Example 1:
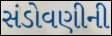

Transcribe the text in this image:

સંડોવણીની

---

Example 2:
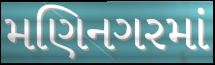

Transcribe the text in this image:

મણિનગરમાં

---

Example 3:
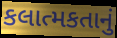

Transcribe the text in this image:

કલાત્મકતાનું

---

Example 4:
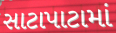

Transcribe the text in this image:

સાટાપાટામાં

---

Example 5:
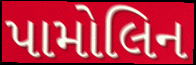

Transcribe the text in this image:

પામોલિન